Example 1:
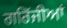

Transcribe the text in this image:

ਗਰਿੱਜੀਆਂ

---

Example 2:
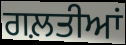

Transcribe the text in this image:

ਗਲ਼ਤੀਆਂ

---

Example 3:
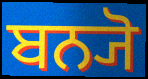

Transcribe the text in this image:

ਬਨ੍ਯੋ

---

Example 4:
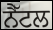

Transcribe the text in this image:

ਨੈੱਟਲ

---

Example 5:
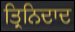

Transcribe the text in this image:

ਤ੍ਰਿਨਿਦਾਦ